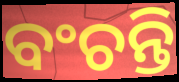
ବଂଚନ୍ତି